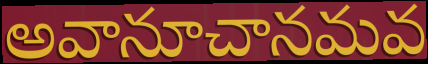
అవానూచానమవ